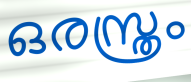
ഒരസ്ത്രം